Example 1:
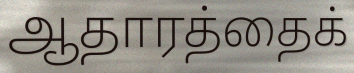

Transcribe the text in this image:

ஆதாரத்தைக்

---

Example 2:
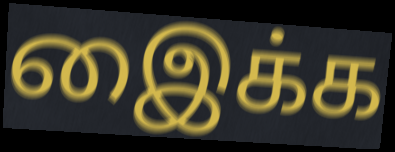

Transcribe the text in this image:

இைக்க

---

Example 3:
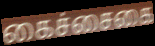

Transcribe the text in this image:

கைச்சைகை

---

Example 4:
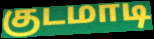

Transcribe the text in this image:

குடமாடி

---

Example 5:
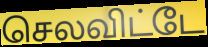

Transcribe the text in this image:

செலவிட்டே